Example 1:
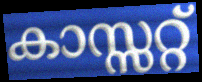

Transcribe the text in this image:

കാസ്സറ്റ്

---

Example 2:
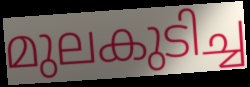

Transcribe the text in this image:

മുലകുടിച്ച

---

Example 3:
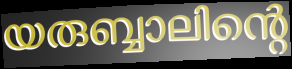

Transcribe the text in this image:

യരുബ്ബാലിന്റെ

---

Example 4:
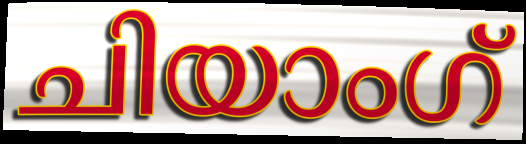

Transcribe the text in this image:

ചിയാംഗ്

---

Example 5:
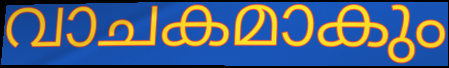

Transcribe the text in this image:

വാചകമാകും